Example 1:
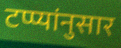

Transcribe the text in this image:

टप्प्यांनुसार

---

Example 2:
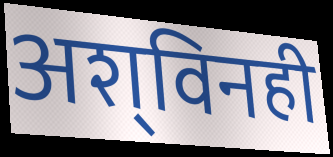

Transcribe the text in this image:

अश्विनही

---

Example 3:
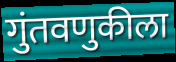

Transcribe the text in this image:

गुंतवणुकीला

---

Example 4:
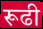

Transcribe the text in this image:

रूढी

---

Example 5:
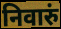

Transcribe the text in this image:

निवारुं